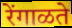
रेंगाळते